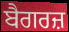
ਬੈਗਰਜ਼